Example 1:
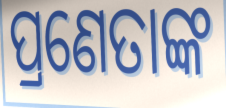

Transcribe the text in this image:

ପ୍ରଣେତାଙ୍କ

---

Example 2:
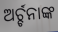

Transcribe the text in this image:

ଅର୍ଚ୍ଚନାଙ୍କ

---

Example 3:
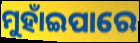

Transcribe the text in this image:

ମୁହାଁଇପାରେ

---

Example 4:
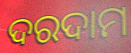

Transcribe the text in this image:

ଦରଦାମ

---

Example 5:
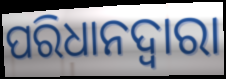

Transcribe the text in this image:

ପରିଧାନଦ୍ୱାରା